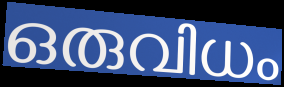
ഒരുവിധം